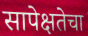
सापेक्षतेचा